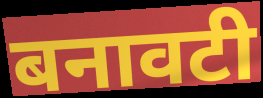
बनावटी